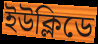
ইউক্লিডে